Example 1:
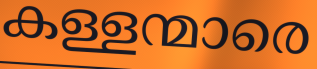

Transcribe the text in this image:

കള്ളന്മാരെ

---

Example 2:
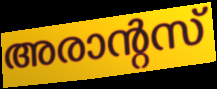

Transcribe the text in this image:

അരാന്റസ്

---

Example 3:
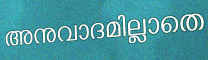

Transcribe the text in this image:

അനുവാദമില്ലാതെ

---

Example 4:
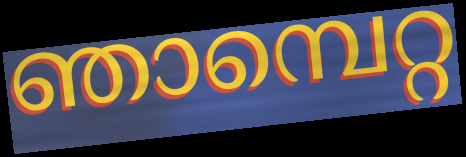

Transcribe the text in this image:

ഞാമ്പെറ്റ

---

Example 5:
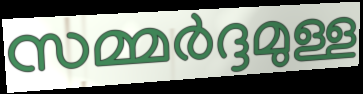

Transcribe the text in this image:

സമ്മർദ്ദമുള്ള